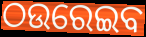
ଠଉରେଇବ